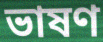
ভাষণ